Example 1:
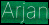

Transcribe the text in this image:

Arjan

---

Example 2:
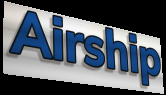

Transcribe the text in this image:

Airship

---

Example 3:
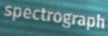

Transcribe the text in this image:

spectrograph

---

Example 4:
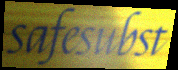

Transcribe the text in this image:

safesubst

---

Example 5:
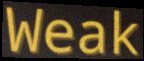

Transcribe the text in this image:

Weak